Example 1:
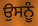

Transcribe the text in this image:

ਉਸਨੂੰ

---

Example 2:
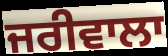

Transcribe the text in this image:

ਜਰੀਵਾਲਾ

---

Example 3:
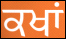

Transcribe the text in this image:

ਕਖਾਂ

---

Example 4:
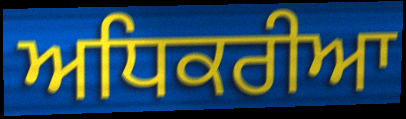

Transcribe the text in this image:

ਅਧਿਕਰੀਆ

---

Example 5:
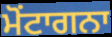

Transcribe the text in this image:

ਮੋਂਟਾਗਨਾ